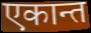
एकान्त